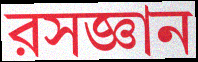
রসজ্ঞান